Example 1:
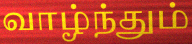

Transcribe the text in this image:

வாழ்ந்தும்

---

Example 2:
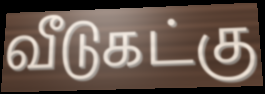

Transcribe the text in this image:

வீடுகட்கு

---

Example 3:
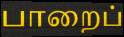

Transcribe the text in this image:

பாறைப்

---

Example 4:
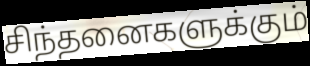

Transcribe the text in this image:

சிந்தனைகளுக்கும்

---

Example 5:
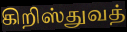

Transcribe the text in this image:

கிறிஸ்துவத்